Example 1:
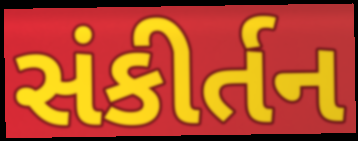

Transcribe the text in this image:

સંકીર્તન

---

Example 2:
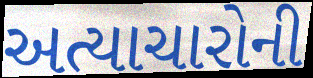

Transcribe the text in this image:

અત્યાચારોની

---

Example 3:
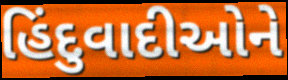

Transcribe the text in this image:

હિંદુવાદીઓને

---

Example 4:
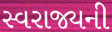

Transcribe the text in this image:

સ્વરાજ્યની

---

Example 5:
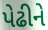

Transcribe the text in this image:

પેઢીને